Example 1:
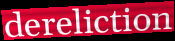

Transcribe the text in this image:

dereliction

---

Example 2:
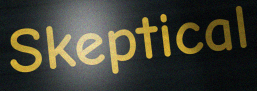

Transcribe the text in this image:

Skeptical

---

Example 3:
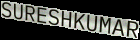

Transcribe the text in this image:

SURESHKUMAR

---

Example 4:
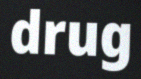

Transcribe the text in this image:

drug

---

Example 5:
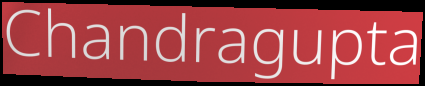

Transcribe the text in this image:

Chandragupta